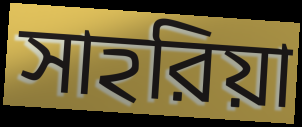
সাহরিয়া